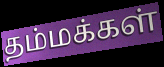
தம்மக்கள்